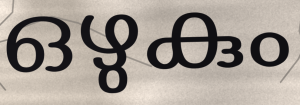
ഒഴുകും